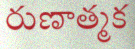
రుణాత్మక